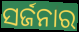
ସର୍ଜନାର